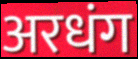
अरधंग